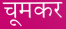
चूमकर